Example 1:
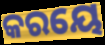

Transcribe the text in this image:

କରୟେ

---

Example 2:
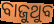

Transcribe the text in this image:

ବାଜୁଥୁବ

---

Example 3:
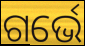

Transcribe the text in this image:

ଗର୍ଭେ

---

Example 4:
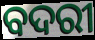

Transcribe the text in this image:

ବଦରୀ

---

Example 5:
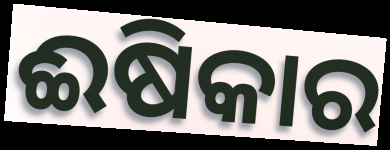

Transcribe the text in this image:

ଈଷିକାର